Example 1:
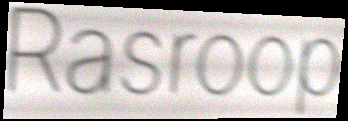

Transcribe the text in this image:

Rasroop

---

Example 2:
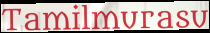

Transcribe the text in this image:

Tamilmurasu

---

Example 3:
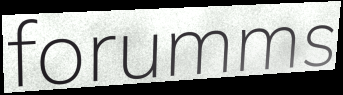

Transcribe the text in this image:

forumms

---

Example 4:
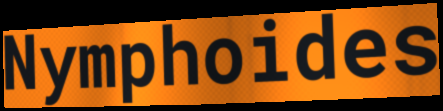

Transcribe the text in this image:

Nymphoides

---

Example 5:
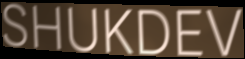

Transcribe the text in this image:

SHUKDEV